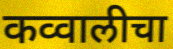
कव्वालीचा